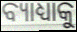
ବ୍ୟାଧ୍ୟାକୁ